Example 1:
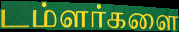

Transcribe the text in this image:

டம்ளர்களை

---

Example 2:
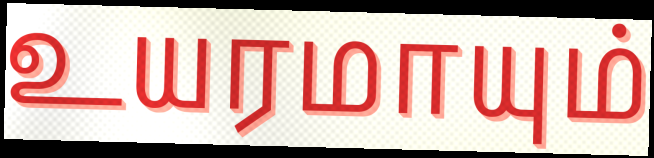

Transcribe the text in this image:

உயரமாயும்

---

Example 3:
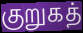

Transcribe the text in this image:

குறுகத்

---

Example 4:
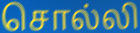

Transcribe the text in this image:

சொல்லி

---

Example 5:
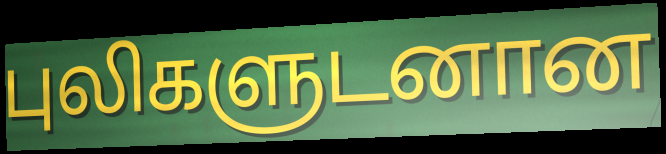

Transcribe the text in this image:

புலிகளுடனான